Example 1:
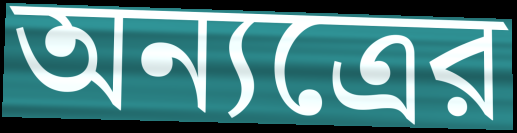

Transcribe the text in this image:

অন্যত্রের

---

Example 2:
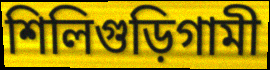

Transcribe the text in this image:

শিলিগুড়িগামী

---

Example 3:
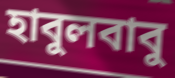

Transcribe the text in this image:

হাবুলবাবু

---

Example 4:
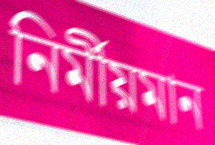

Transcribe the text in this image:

নির্মীয়মান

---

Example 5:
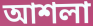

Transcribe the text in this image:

আশলা